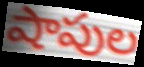
షాపుల